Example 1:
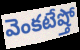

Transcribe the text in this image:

వెంకటేష్తో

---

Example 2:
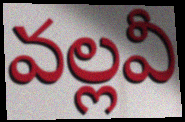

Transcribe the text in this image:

వల్లవీ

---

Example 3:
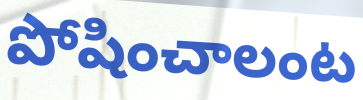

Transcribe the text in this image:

పోషించాలంట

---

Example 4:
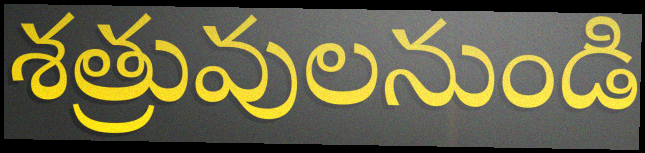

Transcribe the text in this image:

శత్రువులనుండి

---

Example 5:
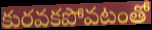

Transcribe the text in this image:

కురవకపోవటంతో